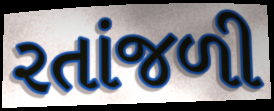
રતાંજળી